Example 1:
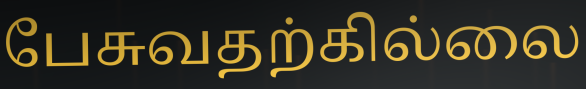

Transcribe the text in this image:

பேசுவதற்கில்லை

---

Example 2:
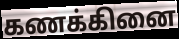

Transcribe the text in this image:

கணக்கினை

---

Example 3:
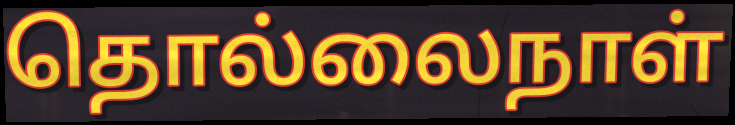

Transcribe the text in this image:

தொல்லைநாள்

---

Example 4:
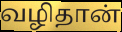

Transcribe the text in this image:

வழிதான்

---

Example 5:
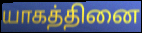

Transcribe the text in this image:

யாகத்தினை